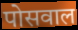
पोसवाल